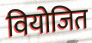
वियोजित